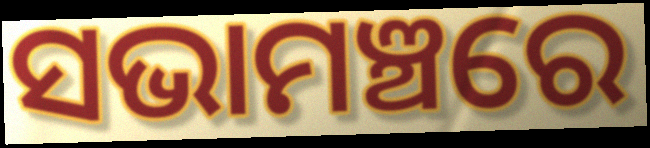
ସଭାମଞ୍ଚରେ